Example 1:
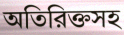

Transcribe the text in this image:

অতিরিক্তসহ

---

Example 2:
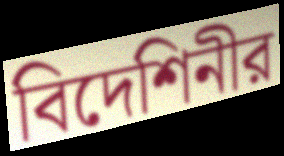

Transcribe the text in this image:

বিদেশিনীর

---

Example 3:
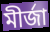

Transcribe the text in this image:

মীর্জা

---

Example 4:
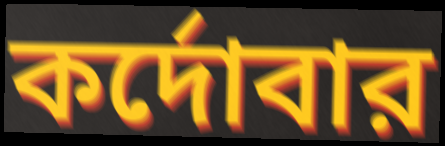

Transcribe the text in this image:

কর্দোবার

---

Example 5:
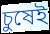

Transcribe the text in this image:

চুষেই